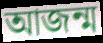
আজন্ম